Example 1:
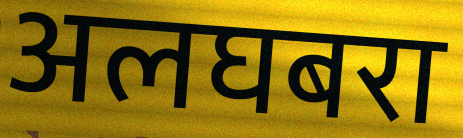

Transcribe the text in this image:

अलघबरा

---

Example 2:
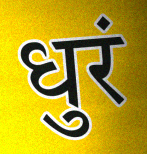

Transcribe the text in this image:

धुरं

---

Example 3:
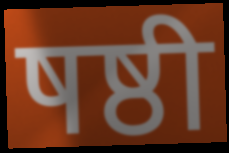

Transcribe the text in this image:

षष्ठी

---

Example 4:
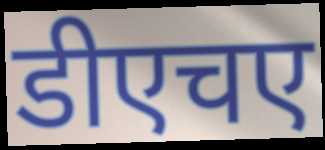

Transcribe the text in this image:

डीएचए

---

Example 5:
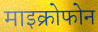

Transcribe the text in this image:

माइक्रोफोन